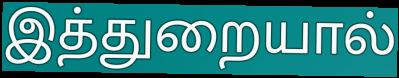
இத்துறையால்